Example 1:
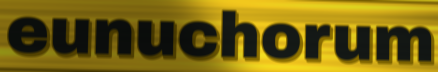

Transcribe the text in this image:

eunuchorum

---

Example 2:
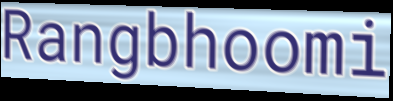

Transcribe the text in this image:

Rangbhoomi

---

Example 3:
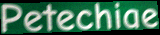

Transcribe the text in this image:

Petechiae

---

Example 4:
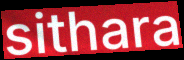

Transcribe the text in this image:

sithara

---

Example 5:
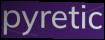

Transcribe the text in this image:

pyretic